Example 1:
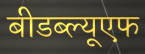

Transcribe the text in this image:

बीडब्ल्यूएफ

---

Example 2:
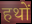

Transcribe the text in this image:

हथों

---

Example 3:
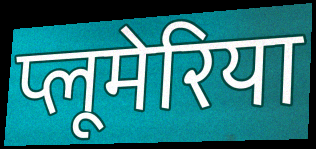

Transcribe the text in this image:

प्लूमेरिया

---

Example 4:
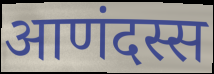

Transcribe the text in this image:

आणंदस्स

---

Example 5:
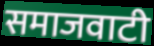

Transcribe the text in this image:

समाजवाटी